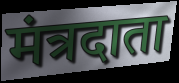
मंत्रदाता